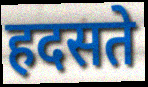
हदसते